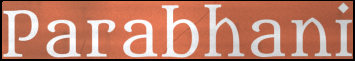
Parabhani